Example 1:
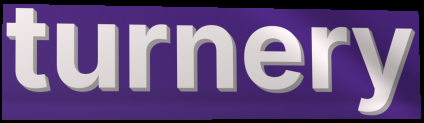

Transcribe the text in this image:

turnery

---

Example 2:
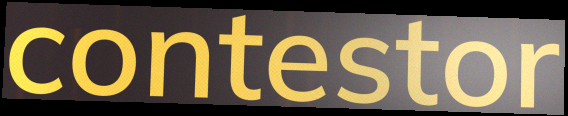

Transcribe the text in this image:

contestor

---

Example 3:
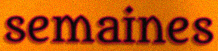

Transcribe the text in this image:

semaines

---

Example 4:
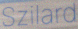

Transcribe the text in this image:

Szilard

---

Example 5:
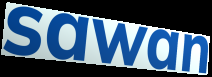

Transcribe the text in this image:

sawan